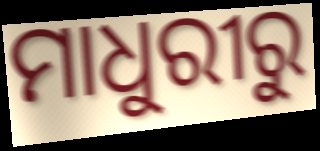
ମାଧୁରୀରୁ